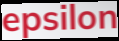
epsilon